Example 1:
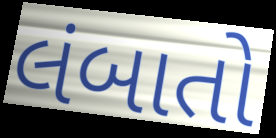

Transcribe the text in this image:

લંબાતો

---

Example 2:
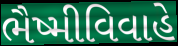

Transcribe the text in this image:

ભૈષ્મીવિવાહે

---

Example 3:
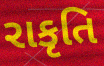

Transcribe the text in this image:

રાકૃતિ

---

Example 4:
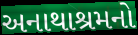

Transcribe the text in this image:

અનાથાશ્રમનો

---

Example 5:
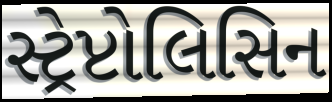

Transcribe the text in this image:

સ્ટ્રેપ્ટોલિસિન